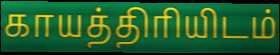
காயத்திரியிடம்